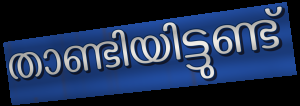
താണ്ടിയിട്ടുണ്ട്